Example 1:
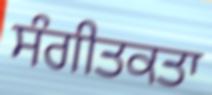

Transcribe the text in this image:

ਸੰਗੀਤਕਤਾ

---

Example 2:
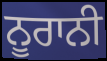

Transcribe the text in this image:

ਨੂਰਾਨੀ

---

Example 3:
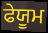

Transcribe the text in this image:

ਫੇਯੂਮ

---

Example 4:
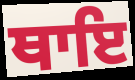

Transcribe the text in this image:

ਥਾਇ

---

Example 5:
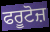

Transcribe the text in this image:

ਫਰੂਟੋਜ਼